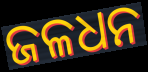
ଜଳଧନ